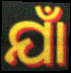
ଯାଁ